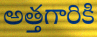
అత్తగారికి